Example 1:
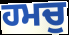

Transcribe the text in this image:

ਹਮਚੁ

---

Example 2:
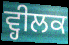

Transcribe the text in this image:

ਵ੍ਹੀਲਕ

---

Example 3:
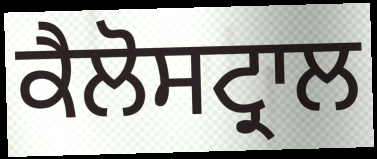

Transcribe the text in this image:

ਕੈਲੋਸਟ੍ਰਾਲ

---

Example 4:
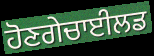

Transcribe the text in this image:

ਹੋਣਗੇਚਾਈਲਡ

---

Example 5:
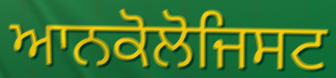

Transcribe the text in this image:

ਆਨਕੋਲੋਜਿਸਟ